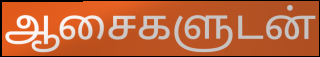
ஆசைகளுடன்